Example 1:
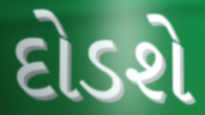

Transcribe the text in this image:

દોડશે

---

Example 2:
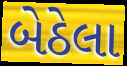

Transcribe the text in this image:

બેઠેલા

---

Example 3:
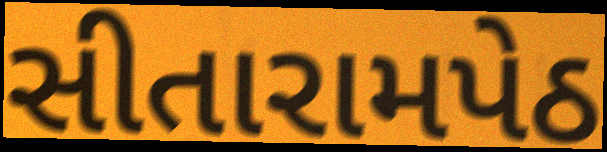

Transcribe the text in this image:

સીતારામપેઠ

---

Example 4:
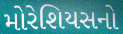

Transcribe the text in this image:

મોરેશિયસનો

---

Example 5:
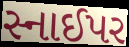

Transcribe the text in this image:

સ્નાઈપર